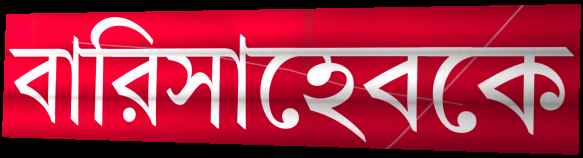
বারিসাহেবকে